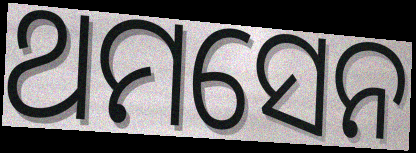
ଥମସେନ